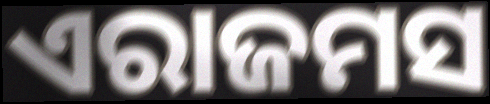
ଏରାଜମସ